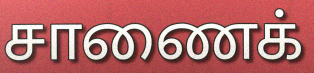
சாணைக்